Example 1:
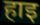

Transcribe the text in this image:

हाइ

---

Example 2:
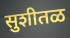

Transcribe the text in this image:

सुशीतळ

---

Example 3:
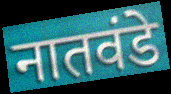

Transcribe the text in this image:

नातवंडे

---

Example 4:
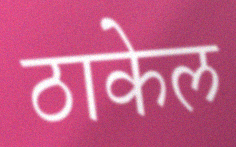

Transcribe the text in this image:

ठाकेल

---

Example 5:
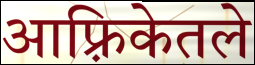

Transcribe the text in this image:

आफ़्रिकेतले